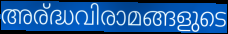
അര്ദ്ധവിരാമങ്ങളുടെ